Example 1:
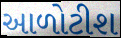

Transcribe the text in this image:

આળોટીશ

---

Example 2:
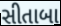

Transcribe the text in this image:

સીતાબા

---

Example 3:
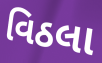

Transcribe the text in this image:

વિઠલા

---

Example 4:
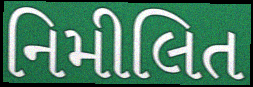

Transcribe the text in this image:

નિમીલિત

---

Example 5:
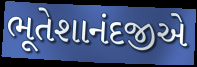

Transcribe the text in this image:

ભૂતેશાનંદજીએ